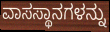
ವಾಸಸ್ಥಾನಗಳನ್ನು